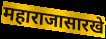
महाराजासारखे